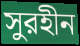
সুরহীন